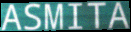
ASMITA